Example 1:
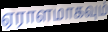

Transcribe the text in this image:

ஏராளமாகவும்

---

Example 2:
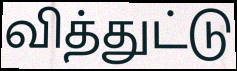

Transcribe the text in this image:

வித்துட்டு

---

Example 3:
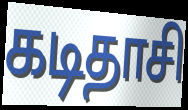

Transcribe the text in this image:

கடிதாசி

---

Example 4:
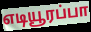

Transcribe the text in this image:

எடியூரப்பா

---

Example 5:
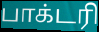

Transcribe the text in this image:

பாக்டரி